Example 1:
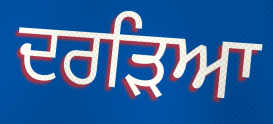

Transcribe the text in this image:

ਦਰੜਿਆ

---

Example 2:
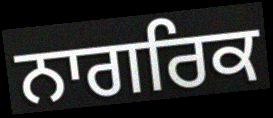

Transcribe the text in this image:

ਨਾਗਰਿਕ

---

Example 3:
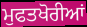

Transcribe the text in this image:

ਮੁਫਤਖੋਰੀਆਂ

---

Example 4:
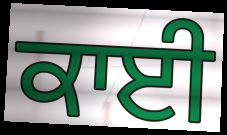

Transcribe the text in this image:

ਕਾਈ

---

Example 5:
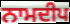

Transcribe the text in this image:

ਨਾਮਦੀਪ